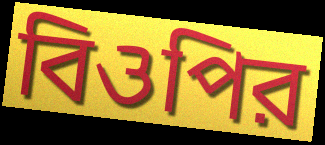
বিওপির